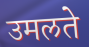
उमलते